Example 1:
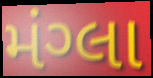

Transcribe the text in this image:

મંગ્લા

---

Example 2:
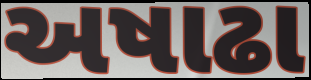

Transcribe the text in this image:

અષાઢા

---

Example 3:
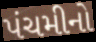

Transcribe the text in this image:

પંચમીનો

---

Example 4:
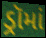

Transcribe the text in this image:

ડ્રૉમાં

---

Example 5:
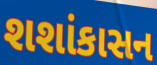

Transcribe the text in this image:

શશાંકાસન